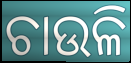
ଚାଉଳି